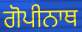
ਗੋਪੀਨਾਥ